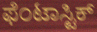
ಫೆಂಟಾಸ್ಟಿಕ್